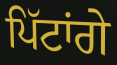
ਪਿੱਟਾਂਗੇ